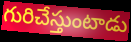
గురిచేస్తుంటాడు